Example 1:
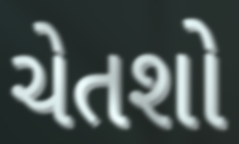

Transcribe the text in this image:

ચેતશો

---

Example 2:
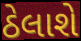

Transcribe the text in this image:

ઠેલાશે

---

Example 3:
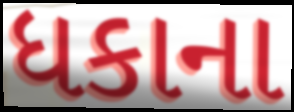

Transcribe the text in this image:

ધકાના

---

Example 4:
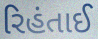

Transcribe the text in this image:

રિહંતાઈ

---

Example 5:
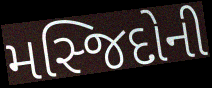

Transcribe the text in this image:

મસ્જિદોની